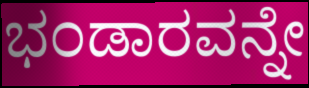
ಭಂಡಾರವನ್ನೇ